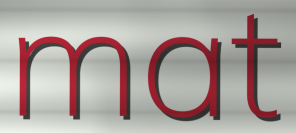
mat